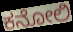
ಕನೋಲಿ